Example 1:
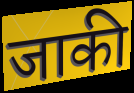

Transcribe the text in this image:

जाकी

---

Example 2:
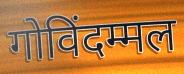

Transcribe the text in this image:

गोविंदम्मल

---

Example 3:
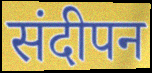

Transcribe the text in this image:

संदीपन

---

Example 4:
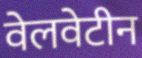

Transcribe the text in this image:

वेलवेटीन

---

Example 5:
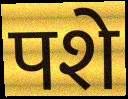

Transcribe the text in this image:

पशे